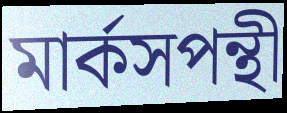
মার্কসপন্থী